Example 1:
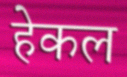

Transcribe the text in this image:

हेकल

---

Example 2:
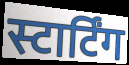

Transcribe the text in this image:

स्टार्टिंग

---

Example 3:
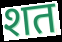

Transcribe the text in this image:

शत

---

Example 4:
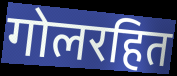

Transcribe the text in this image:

गोलरहित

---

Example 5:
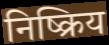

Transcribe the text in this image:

निष्क्रिय